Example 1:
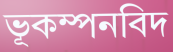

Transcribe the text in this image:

ভূকম্পনবিদ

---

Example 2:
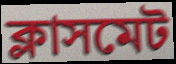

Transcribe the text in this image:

ক্লাসমেট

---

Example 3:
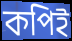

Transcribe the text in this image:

কপিই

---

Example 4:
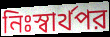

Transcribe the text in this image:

নিঃস্বার্থপর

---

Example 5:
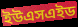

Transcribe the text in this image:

ইউএসএইড